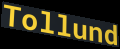
Tollund